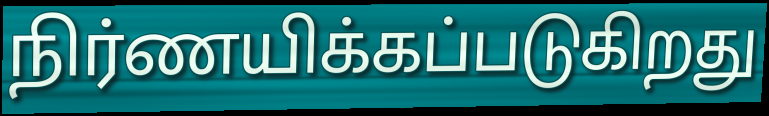
நிர்ணயிக்கப்படுகிறது